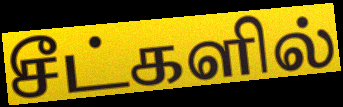
சீட்களில்